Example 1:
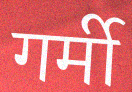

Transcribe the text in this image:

गर्मी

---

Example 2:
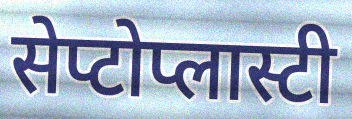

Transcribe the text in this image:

सेप्टोप्लास्टी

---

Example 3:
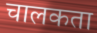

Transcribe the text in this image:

चालकता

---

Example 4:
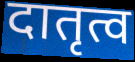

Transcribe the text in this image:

दातृत्व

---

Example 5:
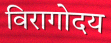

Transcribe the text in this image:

विरागोदय